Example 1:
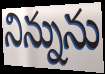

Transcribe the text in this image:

నిన్నును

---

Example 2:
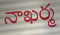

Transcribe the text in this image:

నాఖర్మ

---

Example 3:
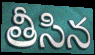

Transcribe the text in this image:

తీసిన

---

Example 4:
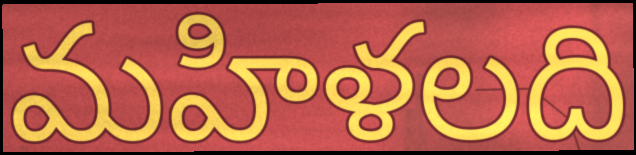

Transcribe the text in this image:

మహిళలది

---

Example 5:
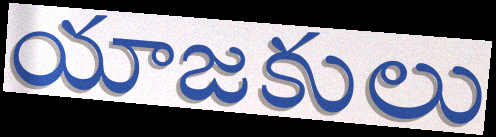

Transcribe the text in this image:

యాజకులు